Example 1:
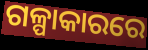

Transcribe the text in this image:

ଗଳ୍ପାକାରରେ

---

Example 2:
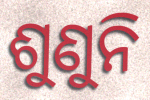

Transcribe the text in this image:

ଶୁଣୁନି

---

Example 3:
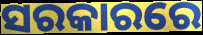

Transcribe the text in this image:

ସରକାରରେ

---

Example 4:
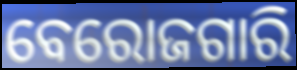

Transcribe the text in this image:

ବେରୋଜଗାରି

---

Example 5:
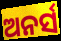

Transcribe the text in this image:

ଅନର୍ସ